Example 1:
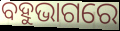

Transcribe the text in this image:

ବହୁଭାଗରେ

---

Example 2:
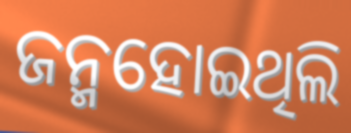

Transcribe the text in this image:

ଜନ୍ମହୋଇଥିଲି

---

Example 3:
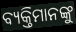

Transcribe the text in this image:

ବ୍ଯକ୍ତିମାନଙ୍କୁ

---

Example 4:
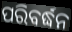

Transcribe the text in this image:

ପରିବର୍ଦ୍ଧନ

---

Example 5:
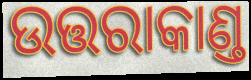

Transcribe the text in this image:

ଉତ୍ତରାକାଣ୍ଡ